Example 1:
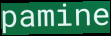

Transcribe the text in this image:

pamine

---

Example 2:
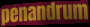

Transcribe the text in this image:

penandrum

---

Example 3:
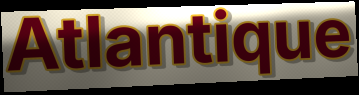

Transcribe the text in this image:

Atlantique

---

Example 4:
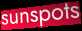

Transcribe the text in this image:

sunspots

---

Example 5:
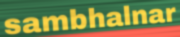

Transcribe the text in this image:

sambhalnar